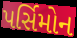
પર્સિમોન